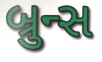
બ્રુન્સ